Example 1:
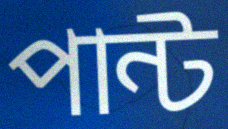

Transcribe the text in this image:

পান্ট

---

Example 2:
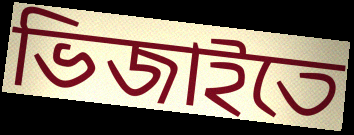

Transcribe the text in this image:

ভিজাইতে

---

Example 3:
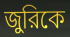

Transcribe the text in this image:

জুরিকে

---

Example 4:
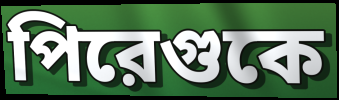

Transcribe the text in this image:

পিরেগুকে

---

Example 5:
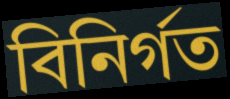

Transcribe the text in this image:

বিনির্গত